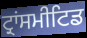
ਟ੍ਰਾਂਸਮੀਟਿਡ